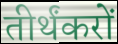
तीर्थंकरों